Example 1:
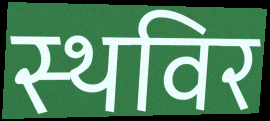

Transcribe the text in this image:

स्थविर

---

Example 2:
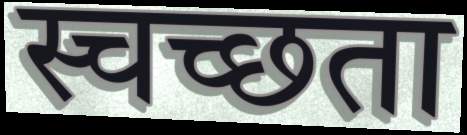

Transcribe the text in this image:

स्चच्छता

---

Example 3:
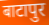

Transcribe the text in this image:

बाटापुर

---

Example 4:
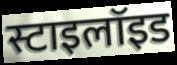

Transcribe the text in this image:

स्टाइलॉइड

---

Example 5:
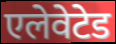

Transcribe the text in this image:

एलेवेटेड